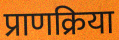
प्राणक्रिया